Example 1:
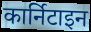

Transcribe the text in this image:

कार्निटाइन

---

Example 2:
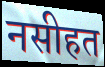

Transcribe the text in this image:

नसीहत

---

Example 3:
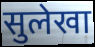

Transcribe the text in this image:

सुलेखा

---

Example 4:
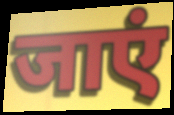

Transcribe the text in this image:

जाएं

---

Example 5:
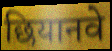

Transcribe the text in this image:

छियानवे